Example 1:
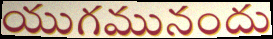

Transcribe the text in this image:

యుగమునందు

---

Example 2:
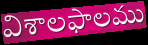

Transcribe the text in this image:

విశాలఫాలము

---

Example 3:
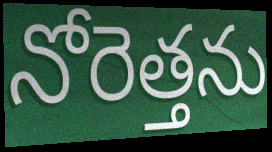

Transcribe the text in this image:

నోరెత్తను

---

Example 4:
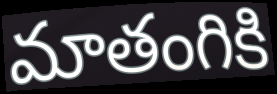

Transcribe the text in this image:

మాతంగికి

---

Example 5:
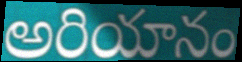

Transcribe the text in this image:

అరియానం